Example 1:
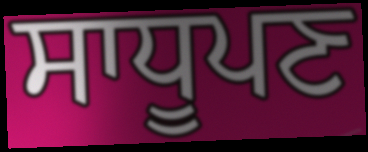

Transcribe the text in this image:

ਸਾਧੂਪਣ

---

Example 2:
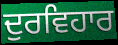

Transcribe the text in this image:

ਦੁਰਵਿਹਾਰ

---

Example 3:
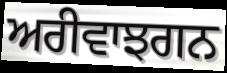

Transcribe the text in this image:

ਅਰੀਵਾਝਗਨ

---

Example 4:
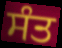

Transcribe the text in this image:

ਸੰਤ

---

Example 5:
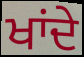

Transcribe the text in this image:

ਖਾਂਦੇ